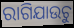
ରାଗିଯାଉଚୁ